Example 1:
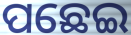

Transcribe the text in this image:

ପଛେଇ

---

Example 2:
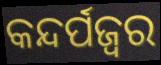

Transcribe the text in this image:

କନ୍ଦର୍ପଜ୍ବର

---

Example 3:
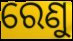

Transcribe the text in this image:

ରେଣୁ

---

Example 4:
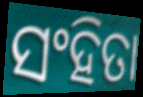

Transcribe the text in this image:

ସଂହିତା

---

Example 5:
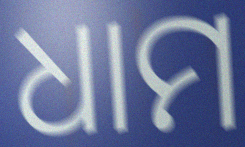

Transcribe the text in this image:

ଧାମ